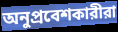
অনুপ্রবেশকারীরা